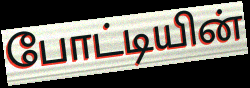
போட்டியின்